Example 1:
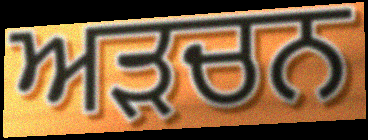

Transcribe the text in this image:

ਅੜਚਨ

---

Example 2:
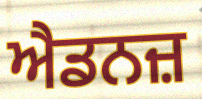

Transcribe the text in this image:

ਐਡਨਜ਼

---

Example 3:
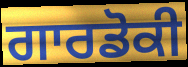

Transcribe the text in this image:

ਗਾਰਡੋਕੀ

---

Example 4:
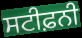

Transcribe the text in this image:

ਸਟੀਫ਼ਨੀ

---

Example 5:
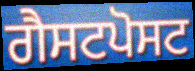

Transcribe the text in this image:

ਗੈਸਟਪੋਸਟ